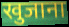
खुजाना